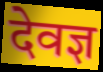
देवज्ञ